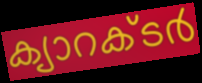
ക്യാറക്ടർ